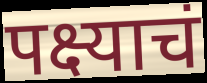
पक्ष्याचं